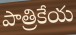
పాత్రికేయ